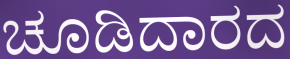
ಚೂಡಿದಾರದ